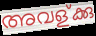
അവള്ക്കു